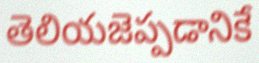
తెలియజెప్పడానికే